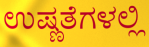
ಉಷ್ಣತೆಗಳಲ್ಲಿ